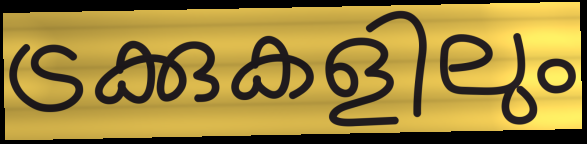
ട്രക്കുകളിലും